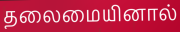
தலைமையினால்